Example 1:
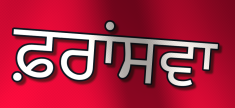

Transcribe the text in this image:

ਫ਼ਰਾਂਸਵਾ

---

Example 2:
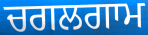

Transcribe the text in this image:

ਚਗਲਗਾਮ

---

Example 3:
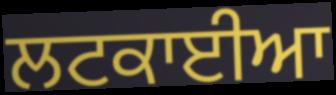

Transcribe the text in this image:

ਲਟਕਾਈਆ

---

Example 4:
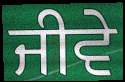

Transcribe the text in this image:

ਜੀਵੇ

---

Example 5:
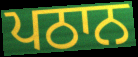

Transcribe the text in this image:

ਪਠਾਨ